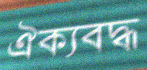
ঐক্যবদ্ধ